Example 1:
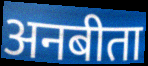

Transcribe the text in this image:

अनबीता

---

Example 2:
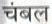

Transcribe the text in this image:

चंबल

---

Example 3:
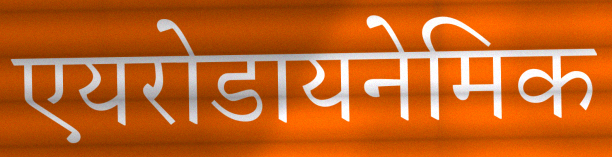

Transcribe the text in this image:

एयरोडायनेमिक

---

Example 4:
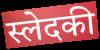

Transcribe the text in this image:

स्लेदकी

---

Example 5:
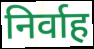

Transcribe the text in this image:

निर्वाह